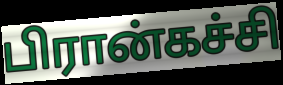
பிரான்கச்சி